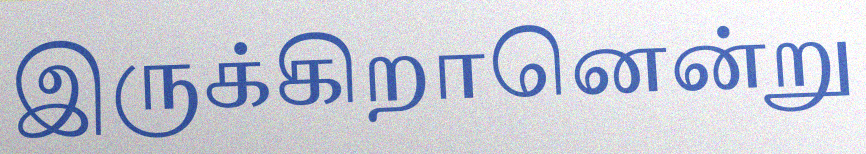
இருக்கிறானென்று